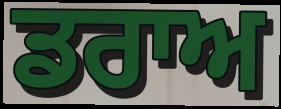
ਡਰਾਅ